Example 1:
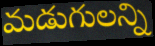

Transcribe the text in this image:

మడుగులన్ని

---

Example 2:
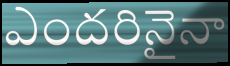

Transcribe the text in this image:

ఎందరినైనా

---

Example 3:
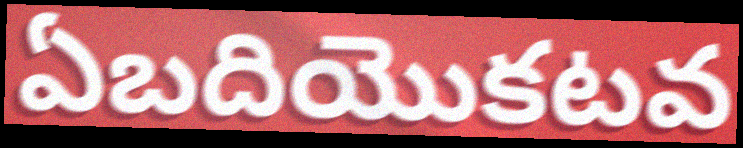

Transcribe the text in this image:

ఏబదియొకటవ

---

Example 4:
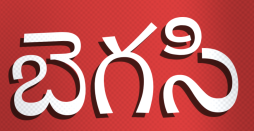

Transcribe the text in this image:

బెగసి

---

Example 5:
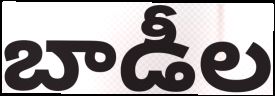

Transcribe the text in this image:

బాడీల